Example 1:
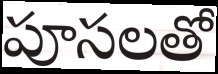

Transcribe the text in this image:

పూసలతో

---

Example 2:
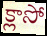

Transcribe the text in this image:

క్లాసో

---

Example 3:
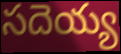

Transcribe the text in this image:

సదెయ్య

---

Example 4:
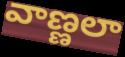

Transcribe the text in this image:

వాణ్ణలా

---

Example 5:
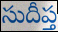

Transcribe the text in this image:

సుదీప్త